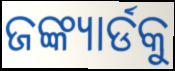
ଜଙ୍କ୍ୟାର୍ଡକୁ